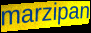
marzipan